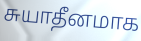
சுயாதீனமாக